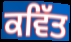
ਕਵਿੱਤ